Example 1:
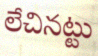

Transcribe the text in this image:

లేచినట్టు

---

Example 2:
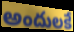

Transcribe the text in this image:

అందులకే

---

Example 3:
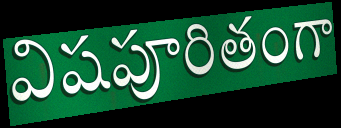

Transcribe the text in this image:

విషపూరితంగా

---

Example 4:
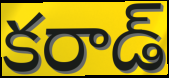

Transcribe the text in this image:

కరాడ్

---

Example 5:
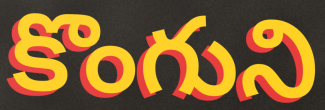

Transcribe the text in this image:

కొంగుని